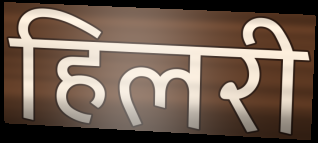
हिलरी